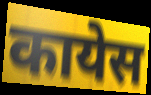
कायेस